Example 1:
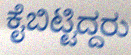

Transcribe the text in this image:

ಕೈಬಿಟ್ಟಿದ್ದರು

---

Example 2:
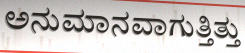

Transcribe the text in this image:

ಅನುಮಾನವಾಗುತ್ತಿತ್ತು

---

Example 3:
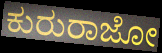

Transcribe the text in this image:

ಕುರುರಾಜೋ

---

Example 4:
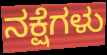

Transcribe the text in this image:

ನಕ್ಷೆಗಳು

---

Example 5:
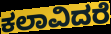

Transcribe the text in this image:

ಕಲಾವಿದರೆ